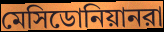
মেসিডোনিয়ানরা